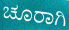
ಚೂರಾಗಿ